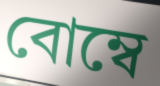
বোম্বে